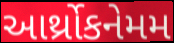
આર્થ્રોકનેમમ